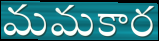
మమకార